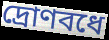
দ্রোণবধে